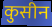
कुसीन